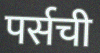
पर्सची